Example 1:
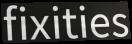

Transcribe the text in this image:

fixities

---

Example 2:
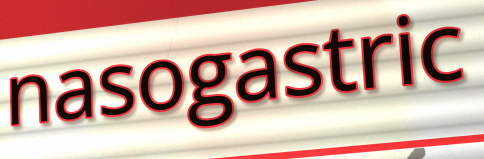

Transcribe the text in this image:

nasogastric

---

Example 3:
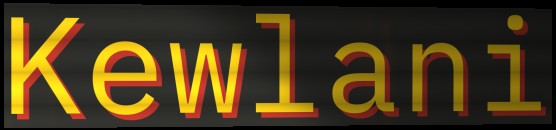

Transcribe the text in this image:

Kewlani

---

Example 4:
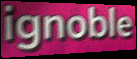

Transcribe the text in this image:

ignoble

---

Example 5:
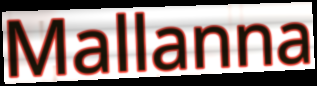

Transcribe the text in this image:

Mallanna